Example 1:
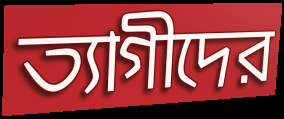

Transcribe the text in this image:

ত্যাগীদের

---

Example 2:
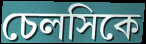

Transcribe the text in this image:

চেলসিকে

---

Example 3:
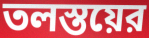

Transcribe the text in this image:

তলস্তয়ের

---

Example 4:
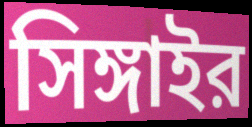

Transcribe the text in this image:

সিঙ্গাইর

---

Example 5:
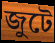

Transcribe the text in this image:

জুটে